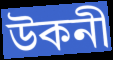
উকনী